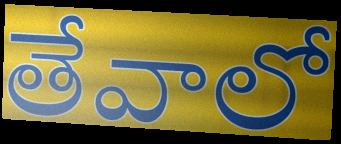
తేవాలో